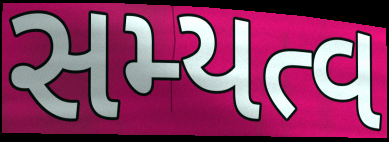
સમ્યત્વ